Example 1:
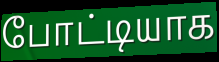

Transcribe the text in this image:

போட்டியாக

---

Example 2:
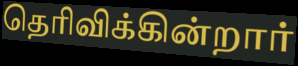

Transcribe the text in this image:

தெரிவிக்கின்றார்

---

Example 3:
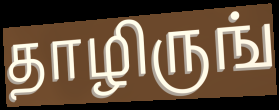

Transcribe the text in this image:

தாழிருங்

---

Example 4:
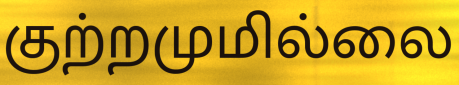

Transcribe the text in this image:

குற்றமுமில்லை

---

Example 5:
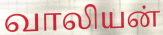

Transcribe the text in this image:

வாலியன்